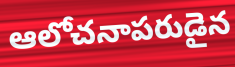
ఆలోచనాపరుడైన